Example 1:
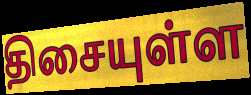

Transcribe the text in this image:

திசையுள்ள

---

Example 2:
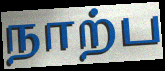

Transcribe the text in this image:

நாற்ப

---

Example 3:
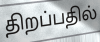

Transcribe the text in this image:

திறப்பதில்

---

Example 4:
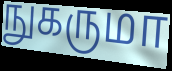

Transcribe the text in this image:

நுகருமா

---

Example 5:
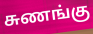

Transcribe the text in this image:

சுணங்கு